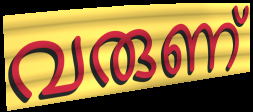
വരുണ്